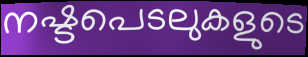
നഷ്ടപെടലുകളുടെ